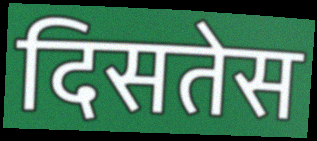
दिसतेस